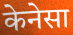
केनेसा